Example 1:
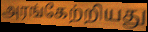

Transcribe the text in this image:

அரங்கேற்றியது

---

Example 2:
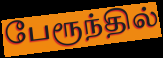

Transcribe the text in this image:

பேரூந்தில்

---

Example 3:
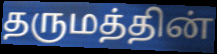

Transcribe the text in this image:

தருமத்தின்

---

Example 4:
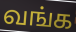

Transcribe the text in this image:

வங்க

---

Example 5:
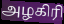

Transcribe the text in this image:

அழகிரி